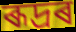
ৰূদ্ৰৰ